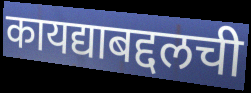
कायद्याबद्दलची